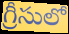
గ్రీసులో